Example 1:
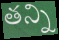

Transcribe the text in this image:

తన్ని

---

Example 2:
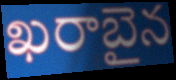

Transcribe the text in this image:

ఖరాబైన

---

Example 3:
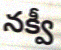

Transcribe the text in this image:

నక్వీ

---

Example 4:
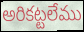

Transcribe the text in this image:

అరికట్టలేము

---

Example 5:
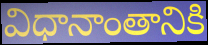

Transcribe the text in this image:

విధానాంతానికి